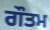
ਗੌਤਮ